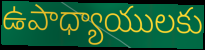
ఉపాధ్యాయులకు